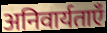
अनिवार्यताएँ